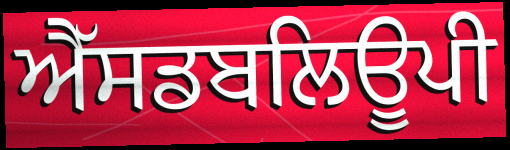
ਐੱਸਡਬਲਿਊਪੀ